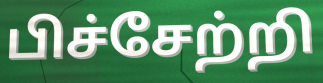
பிச்சேற்றி